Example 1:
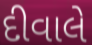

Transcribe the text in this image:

દીવાલે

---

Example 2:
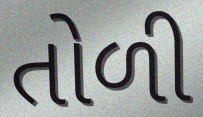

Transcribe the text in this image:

તોળી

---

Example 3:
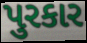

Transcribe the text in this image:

પુરકાર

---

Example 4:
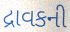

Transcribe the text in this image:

દ્રાવકની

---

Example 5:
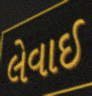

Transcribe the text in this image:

લેવાઈ